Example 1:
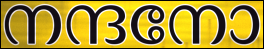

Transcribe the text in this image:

നന്ദനോ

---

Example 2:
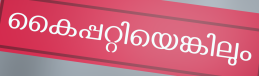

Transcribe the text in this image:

കൈപ്പറ്റിയെങ്കിലും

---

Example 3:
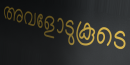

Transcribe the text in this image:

അവളോടുകൂടെ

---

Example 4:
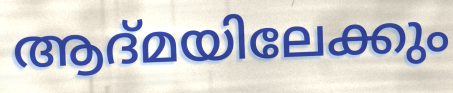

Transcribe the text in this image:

ആദ്മയിലേക്കും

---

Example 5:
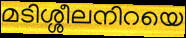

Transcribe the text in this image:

മടിശ്ശീലനിറയെ